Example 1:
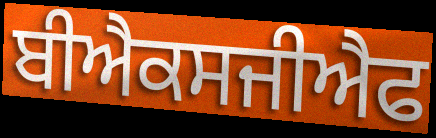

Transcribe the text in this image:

ਬੀਐਕਸਜੀਐਫ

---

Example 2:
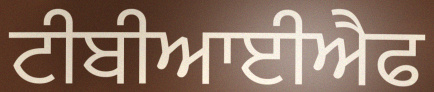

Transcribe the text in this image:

ਟੀਬੀਆਈਐਫ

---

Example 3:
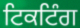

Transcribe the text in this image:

ਟਿਕਟਿੰਗ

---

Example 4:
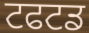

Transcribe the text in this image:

ਟਫਟਡ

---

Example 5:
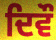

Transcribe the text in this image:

ਦਿਵੌ